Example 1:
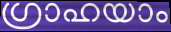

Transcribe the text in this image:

ഗ്രാഹയാം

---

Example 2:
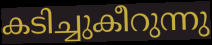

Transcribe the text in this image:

കടിച്ചുകീറുന്നു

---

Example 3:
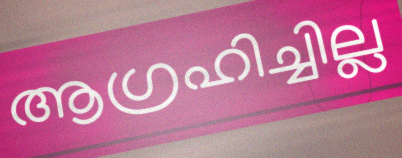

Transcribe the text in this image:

ആഗ്രഹിച്ചില്ല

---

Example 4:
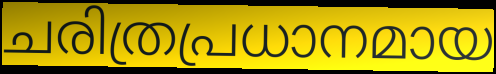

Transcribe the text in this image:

ചരിത്രപ്രധാനമായ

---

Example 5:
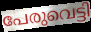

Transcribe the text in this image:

പേരുവെട്ടി